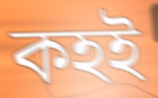
কহই